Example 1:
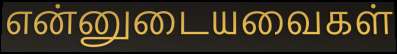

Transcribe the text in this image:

என்னுடையவைகள்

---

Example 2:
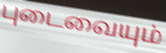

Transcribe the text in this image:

புடைவையும்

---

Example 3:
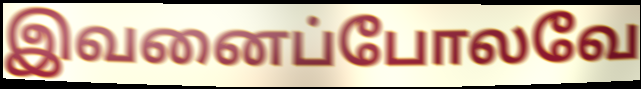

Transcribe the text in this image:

இவனைப்போலவே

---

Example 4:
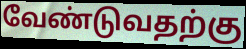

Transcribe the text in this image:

வேண்டுவதற்கு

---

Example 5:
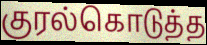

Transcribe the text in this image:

குரல்கொடுத்த